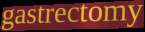
gastrectomy